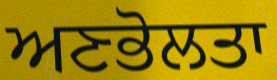
ਅਣਭੋਲਤਾ